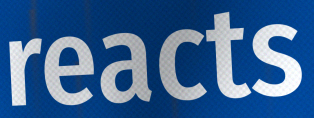
reacts